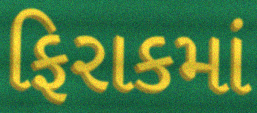
ફિરાકમાં